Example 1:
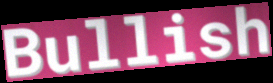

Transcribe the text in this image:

Bullish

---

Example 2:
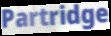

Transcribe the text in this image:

Partridge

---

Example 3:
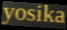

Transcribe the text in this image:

yosika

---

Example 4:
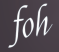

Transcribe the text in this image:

foh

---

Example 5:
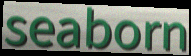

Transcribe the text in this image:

seaborn